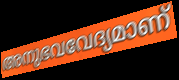
അനുഭവവേദ്യമാണ്